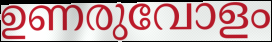
ഉണരുവോളം